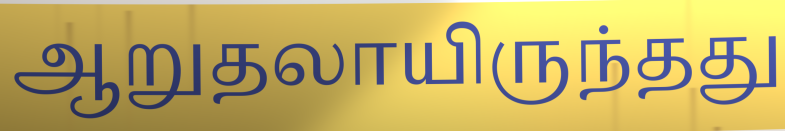
ஆறுதலாயிருந்தது